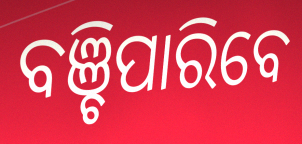
ବଞ୍ଚିପାରିବେ